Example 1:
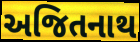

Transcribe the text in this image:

અજિતનાથ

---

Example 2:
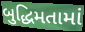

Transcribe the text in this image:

બુદ્ધિમતામાં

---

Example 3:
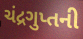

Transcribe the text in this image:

ચંદ્રગુપ્તની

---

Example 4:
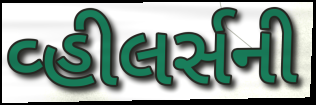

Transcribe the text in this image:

વ્હીલર્સની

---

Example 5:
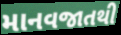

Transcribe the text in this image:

માનવજાતથી